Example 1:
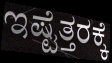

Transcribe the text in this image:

ಇಷ್ಟೆತ್ತರಕ್ಕೆ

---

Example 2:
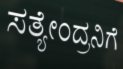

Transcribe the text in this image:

ಸತ್ಯೇಂದ್ರನಿಗೆ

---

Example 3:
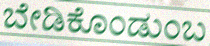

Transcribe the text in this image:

ಬೇಡಿಕೊಂಡುಂಬ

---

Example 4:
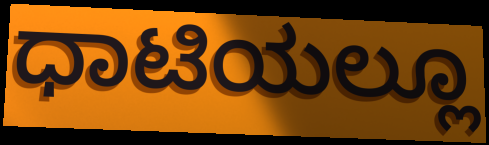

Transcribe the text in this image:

ಧಾಟಿಯಲ್ಲೂ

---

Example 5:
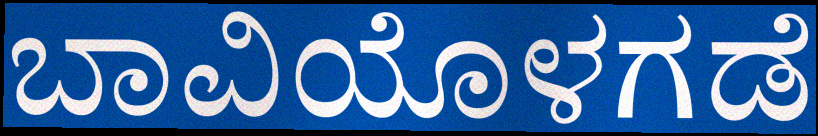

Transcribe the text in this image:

ಬಾವಿಯೊಳಗಡೆ